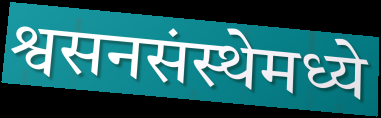
श्वसनसंस्थेमध्ये